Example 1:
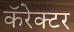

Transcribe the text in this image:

कॅरेक्टर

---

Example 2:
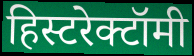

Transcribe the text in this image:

हिस्टरेक्टॉमी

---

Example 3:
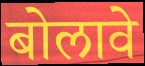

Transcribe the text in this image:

बोलावे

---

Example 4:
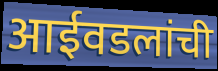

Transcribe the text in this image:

आईवडलांची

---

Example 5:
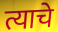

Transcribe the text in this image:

त्याचे